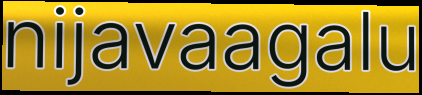
nijavaagalu